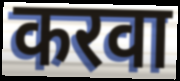
करवा